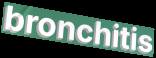
bronchitis